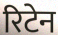
रिटेन